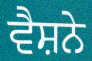
ਵੈਸ਼ਨੇ